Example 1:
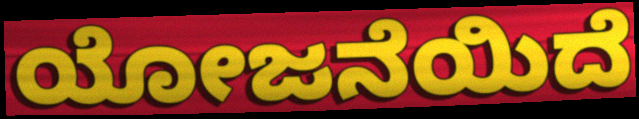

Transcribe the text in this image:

ಯೋಜನೆಯಿದೆ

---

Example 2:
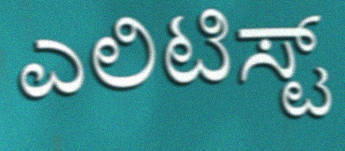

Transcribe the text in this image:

ಎಲಿಟಿಸ್ಟ್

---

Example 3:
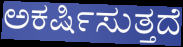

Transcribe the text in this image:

ಅಕರ್ಷಿಸುತ್ತದೆ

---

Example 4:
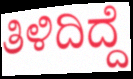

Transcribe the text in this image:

ತಿಳಿದಿದ್ದೆ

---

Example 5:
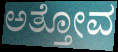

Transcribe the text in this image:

ಅತ್ತೋವ